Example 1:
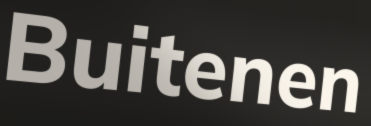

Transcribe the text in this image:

Buitenen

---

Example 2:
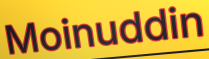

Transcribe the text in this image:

Moinuddin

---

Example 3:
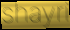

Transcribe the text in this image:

shayri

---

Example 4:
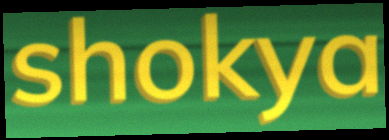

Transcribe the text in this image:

shokya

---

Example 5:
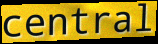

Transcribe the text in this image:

central